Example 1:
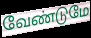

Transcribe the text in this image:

வேண்டுமே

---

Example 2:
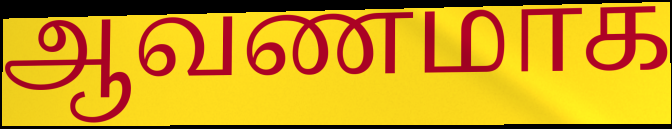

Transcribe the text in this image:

ஆவணமாக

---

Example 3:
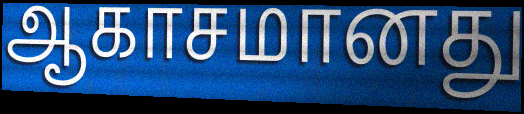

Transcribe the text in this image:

ஆகாசமானது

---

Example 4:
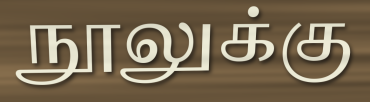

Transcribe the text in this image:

நூலுக்கு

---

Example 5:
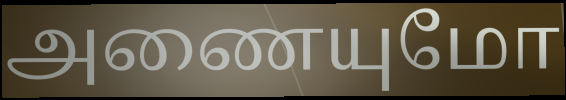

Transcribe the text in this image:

அணையுமோ